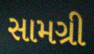
સામગ્રી